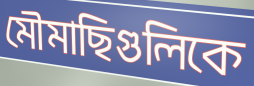
মৌমাছিগুলিকে